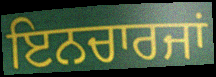
ਇਨਚਾਰਜਾਂ